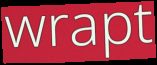
wrapt